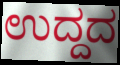
ಉದ್ದದ